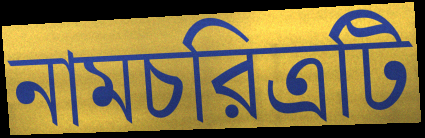
নামচরিত্রটি